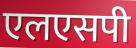
एलएसपी